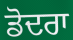
ਡੋਦਰਾ